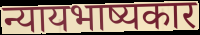
न्यायभाष्यकार